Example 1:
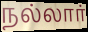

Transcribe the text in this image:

நல்லார்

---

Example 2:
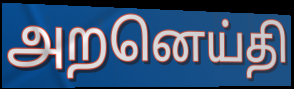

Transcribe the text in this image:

அறனெய்தி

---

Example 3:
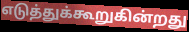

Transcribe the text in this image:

எடுத்துக்கூறுகின்றது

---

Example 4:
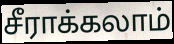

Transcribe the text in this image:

சீராக்கலாம்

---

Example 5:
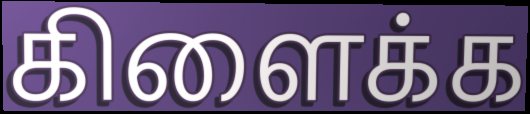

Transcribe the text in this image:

கிளைக்க